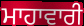
ਮਾਹਾਵਾਰੀ